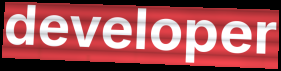
developer